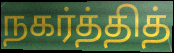
நகர்த்தித்